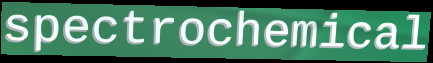
spectrochemical